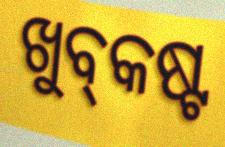
ଖୁବ୍‌କଷ୍ଟ